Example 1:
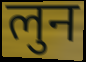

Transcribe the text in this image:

लुन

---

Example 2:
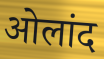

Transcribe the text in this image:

ओलांद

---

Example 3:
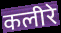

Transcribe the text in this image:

कलीरे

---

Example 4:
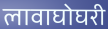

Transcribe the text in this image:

लावाघोघरी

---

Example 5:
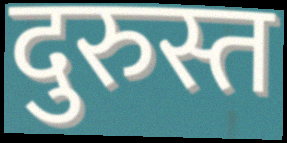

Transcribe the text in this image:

दुरुस्त